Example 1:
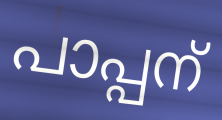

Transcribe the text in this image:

പാപ്പന്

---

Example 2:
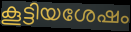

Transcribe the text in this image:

കൂട്ടിയശേഷം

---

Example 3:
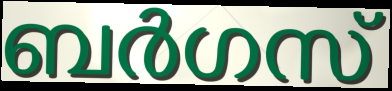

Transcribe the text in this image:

ബർഗസ്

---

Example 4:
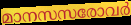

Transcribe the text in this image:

മാനസസരോവർ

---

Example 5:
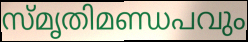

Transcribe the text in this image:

സ്മൃതിമണ്ഡപവും